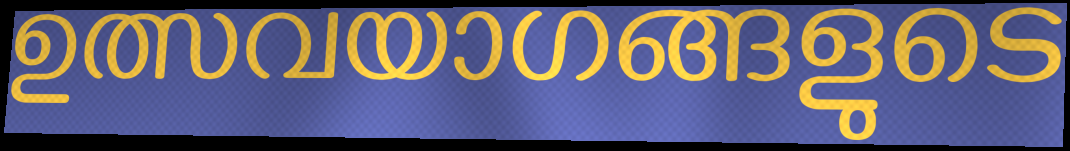
ഉത്സവയാഗങ്ങളുടെ